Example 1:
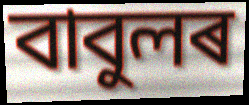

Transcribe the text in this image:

বাবুলৰ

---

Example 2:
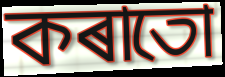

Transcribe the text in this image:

কৰাতো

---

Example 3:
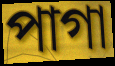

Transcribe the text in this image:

পাগা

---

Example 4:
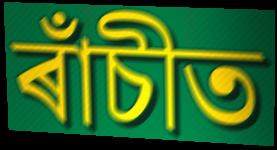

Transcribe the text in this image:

ৰাঁচীত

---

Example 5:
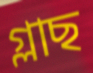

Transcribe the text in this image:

গ্লাছ